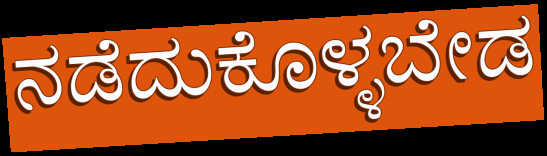
ನಡೆದುಕೊಳ್ಳಬೇಡ